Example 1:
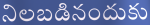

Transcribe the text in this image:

నిలబడినందుకు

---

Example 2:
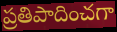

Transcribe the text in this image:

ప్రతిపాదించగా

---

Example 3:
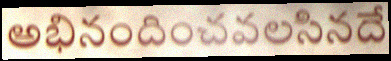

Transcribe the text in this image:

అభినందించవలసినదే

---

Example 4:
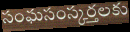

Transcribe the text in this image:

సంఘసంస్కర్తలకు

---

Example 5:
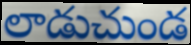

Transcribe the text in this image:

లాడుచుండ